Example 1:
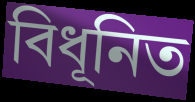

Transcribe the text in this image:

বিধূনিত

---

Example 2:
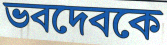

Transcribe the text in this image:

ভবদেবকে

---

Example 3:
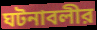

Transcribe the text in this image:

ঘটনাবলীর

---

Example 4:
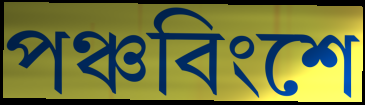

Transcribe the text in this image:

পঞ্চবিংশে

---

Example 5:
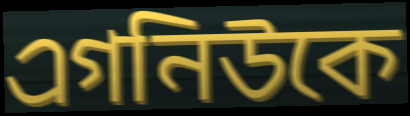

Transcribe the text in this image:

এগনিউকে